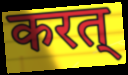
करत्